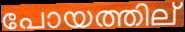
പോയത്തില്